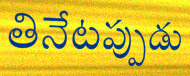
తినేటప్పుడు